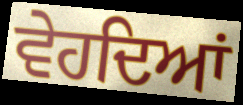
ਵੇਹਦਿਆਂ